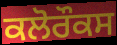
ਕਲੋਰੌਕਸ